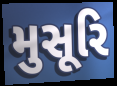
મુસૂરિ